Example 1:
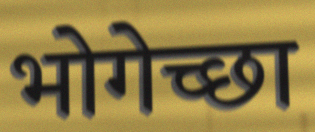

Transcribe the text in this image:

भोगेच्छा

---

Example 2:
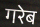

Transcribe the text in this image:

गरेब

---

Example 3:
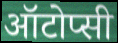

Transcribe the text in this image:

ऑटोप्सी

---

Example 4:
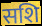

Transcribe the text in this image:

सशि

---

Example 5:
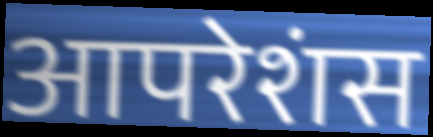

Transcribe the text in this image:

आपरेशंस